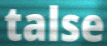
talse